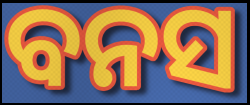
ବନସ